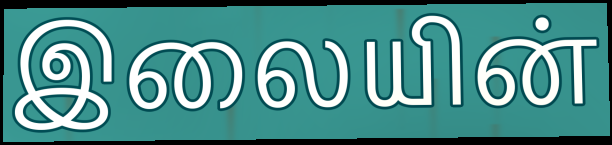
இலையின்